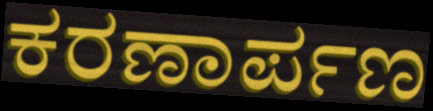
ಕರಣಾರ್ಪಣ